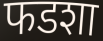
फडशा